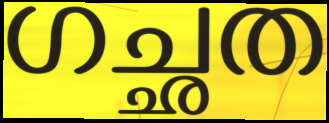
ഗച്ഛത